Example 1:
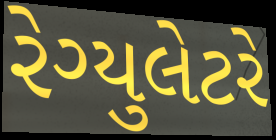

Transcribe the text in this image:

રેગ્યુલેટરે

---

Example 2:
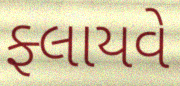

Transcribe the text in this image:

ફ્લાયવે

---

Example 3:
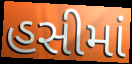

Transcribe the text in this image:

હસીમાં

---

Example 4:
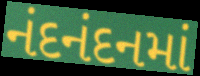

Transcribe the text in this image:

નંદનંદનમાં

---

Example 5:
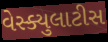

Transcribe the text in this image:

વેસ્ક્યુલાટીસ